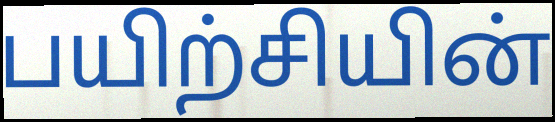
பயிற்சியின்